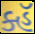
ક્હૅ